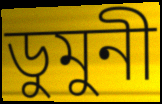
ডুমুনী